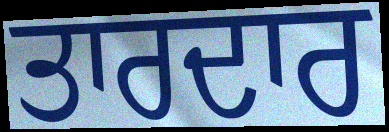
ਤਾਰਦਾਰ